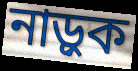
নাড়ুক